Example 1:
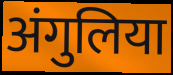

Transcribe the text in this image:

अंगुलिया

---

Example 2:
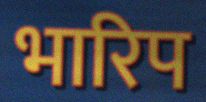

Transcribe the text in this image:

भारिप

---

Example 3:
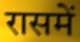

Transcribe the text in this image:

रासमें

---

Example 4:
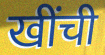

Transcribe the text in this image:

खींची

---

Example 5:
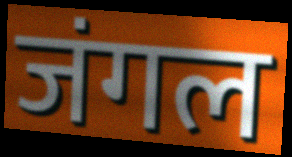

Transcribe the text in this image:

जंगल